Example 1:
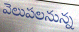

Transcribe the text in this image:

వెలుపలనున్న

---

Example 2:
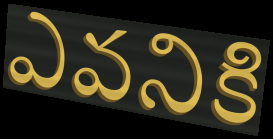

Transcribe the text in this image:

ఎవనికి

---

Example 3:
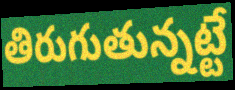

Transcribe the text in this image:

తిరుగుతున్నట్టే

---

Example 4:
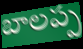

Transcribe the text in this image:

బాలప్ప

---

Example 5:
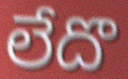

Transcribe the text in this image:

లేదొ